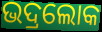
ଭଦ୍ରଲୋକ